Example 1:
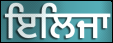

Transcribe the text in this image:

ਇਲਿਜਾ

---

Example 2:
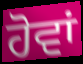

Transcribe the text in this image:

ਹੋਵਾਂ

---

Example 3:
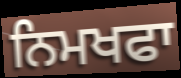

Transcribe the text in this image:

ਨਿਮਖਫਾ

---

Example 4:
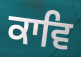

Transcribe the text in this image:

ਕਾਵਿ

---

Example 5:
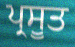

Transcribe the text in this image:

ਪ੍ਰਸੂਤ